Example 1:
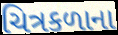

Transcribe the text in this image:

ચિત્રકળાના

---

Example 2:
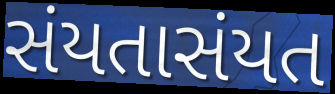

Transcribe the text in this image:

સંયતાસંયત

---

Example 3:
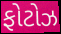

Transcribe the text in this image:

ફોટોઝ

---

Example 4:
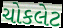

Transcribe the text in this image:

ચોકલેટ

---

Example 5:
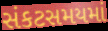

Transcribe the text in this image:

સંકટસમયમાં